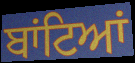
ਬਾਂਟਿਆਂ